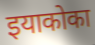
इयाकोका